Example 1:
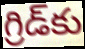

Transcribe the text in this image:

గ్రిడ్‌కు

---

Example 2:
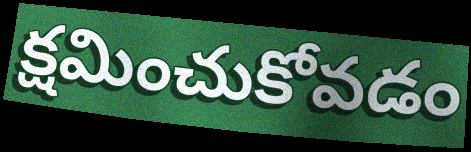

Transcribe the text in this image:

క్షమించుకోవడం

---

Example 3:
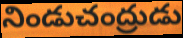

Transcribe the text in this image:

నిండుచంద్రుడు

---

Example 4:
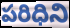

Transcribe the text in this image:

పరిధిని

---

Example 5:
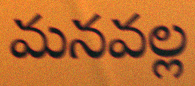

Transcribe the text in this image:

మనవల్ల